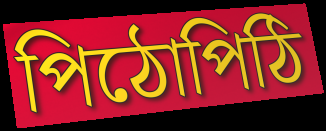
পিঠোপিঠি